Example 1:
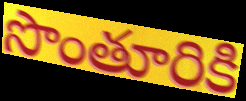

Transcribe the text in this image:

సొంతూరికి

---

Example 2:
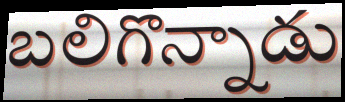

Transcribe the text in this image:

బలిగొన్నాడు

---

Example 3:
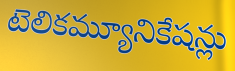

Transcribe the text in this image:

టెలికమ్యూనికేషన్లు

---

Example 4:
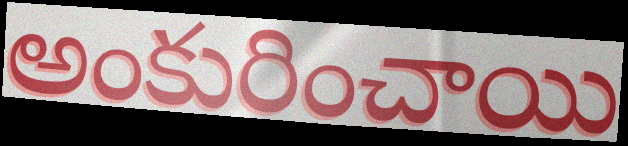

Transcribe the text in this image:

అంకురించాయి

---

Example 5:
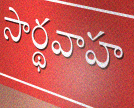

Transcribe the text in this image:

సార్థవాహ